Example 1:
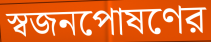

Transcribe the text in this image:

স্বজনপোষণের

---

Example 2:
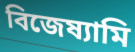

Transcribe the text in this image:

বিজেষ্যামি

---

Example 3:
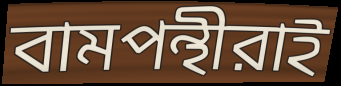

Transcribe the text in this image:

বামপন্থীরাই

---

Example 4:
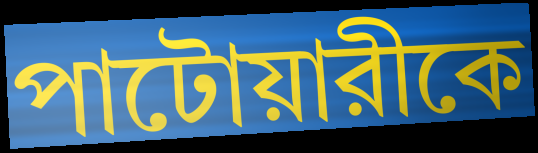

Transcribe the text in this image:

পাটোয়ারীকে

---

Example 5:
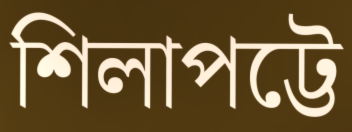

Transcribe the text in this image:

শিলাপট্টে